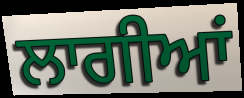
ਲਾਗੀਆਂ